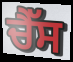
ਚੈੱਸ